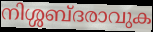
നിശ്ശബ്ദരാവുക